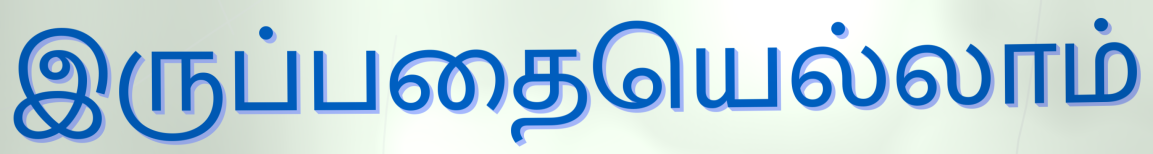
இருப்பதையெல்லாம்